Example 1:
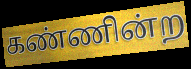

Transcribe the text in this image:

கண்ணின்ற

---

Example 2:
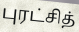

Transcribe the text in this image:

புரட்சித்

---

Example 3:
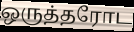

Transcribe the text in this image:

ஒருத்தரோட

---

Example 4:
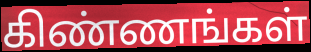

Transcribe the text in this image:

கிண்ணங்கள்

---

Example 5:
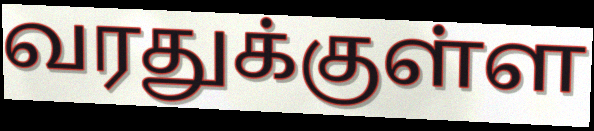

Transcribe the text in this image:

வரதுக்குள்ள